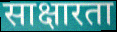
साक्षारता